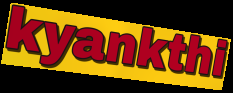
kyankthi